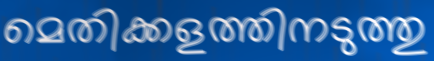
മെതിക്കളത്തിനടുത്തു